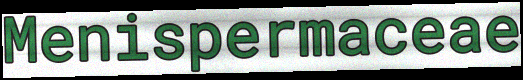
Menispermaceae